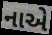
નાએ